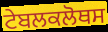
ਟੇਬਲਕਲੋਥਸ